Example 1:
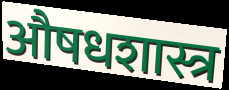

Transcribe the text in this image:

औषधशास्त्र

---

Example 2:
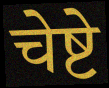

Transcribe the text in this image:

चेष्टे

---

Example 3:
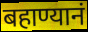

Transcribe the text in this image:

बहाण्यानं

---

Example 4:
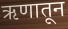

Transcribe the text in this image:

ऋणातून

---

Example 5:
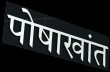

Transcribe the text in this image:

पोषाखांत